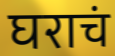
घराचं